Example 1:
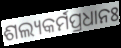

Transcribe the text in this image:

ଶଲ୍ୟକର୍ମପ୍ରଧାନଃ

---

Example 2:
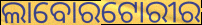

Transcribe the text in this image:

ଲାବୋରଟୋରୀର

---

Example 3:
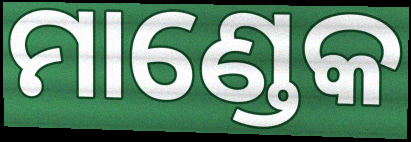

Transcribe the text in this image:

ମାଣ୍ଡେକ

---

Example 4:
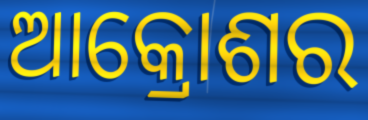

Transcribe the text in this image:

ଆକ୍ରୋଶର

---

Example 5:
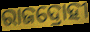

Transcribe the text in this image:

ରାଜଦ୍ରୋହୀ